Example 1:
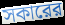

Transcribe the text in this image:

সকারের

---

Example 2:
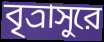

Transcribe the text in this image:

বৃত্রাসুরে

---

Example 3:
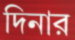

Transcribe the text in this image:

দিনার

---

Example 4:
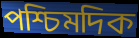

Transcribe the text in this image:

পশ্চিমদিক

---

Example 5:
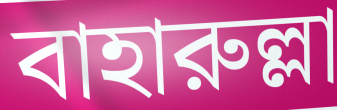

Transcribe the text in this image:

বাহারুল্লা